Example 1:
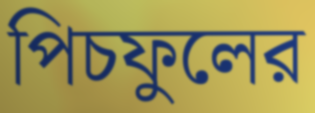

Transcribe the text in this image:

পিচফুলের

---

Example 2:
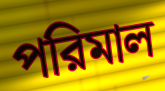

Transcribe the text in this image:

পরিমাল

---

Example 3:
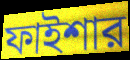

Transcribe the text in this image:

ফাইশার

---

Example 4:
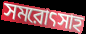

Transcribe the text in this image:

সমরোৎসাহ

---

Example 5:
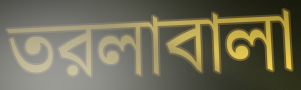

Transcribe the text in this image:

তরলাবালা